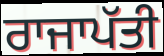
ਰਾਜਾਪੱਤੀ